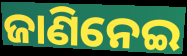
ଜାଣିନେଇ